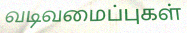
வடிவமைப்புகள்